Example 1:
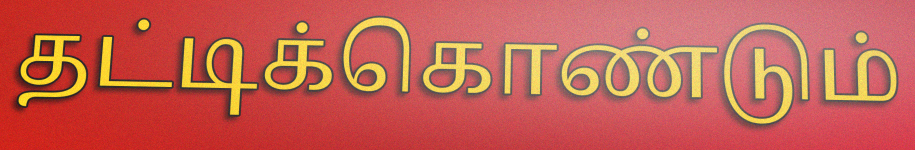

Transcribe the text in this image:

தட்டிக்கொண்டும்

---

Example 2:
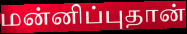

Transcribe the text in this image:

மன்னிப்புதான்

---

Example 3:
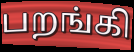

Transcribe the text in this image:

பறங்கி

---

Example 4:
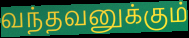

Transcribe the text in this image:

வந்தவனுக்கும்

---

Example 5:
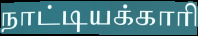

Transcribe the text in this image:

நாட்டியக்காரி